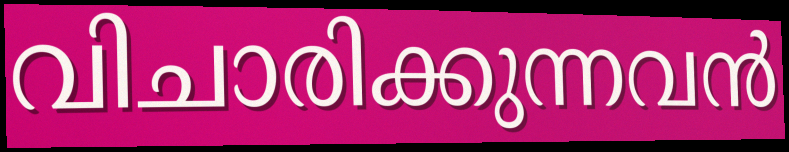
വിചാരിക്കുന്നവൻ